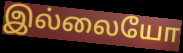
இல்லையோ